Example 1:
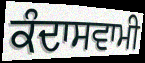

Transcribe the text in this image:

ਕੰਦਾਸਵਾਮੀ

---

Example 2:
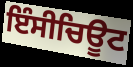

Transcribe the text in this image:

ਇੰਸੀਚਿਊਟ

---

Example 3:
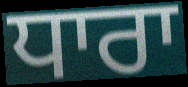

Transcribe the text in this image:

ਧਾਰਾ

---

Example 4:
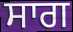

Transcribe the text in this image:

ਸਾਗ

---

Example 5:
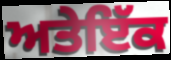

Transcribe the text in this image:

ਅਤੇਇੱਕ